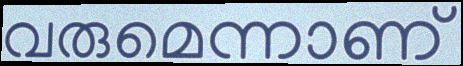
വരുമെന്നാണ്